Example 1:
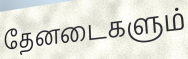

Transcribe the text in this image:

தேனடைகளும்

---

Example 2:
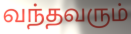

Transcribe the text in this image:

வந்தவரும்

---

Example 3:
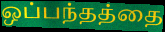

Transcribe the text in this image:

ஒப்பந்தத்தை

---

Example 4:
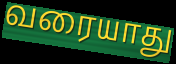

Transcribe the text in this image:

வரையாது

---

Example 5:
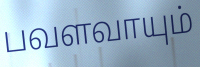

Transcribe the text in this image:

பவளவாயும்